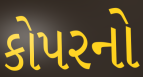
કોપરનો